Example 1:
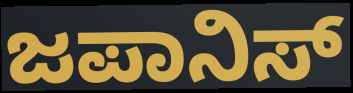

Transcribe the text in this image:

ಜಪಾನಿಸ್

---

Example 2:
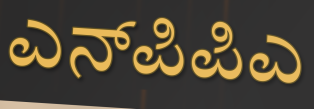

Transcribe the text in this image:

ಎನ್‌ಪಿಪಿಎ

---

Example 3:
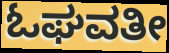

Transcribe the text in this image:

ಓಘವತೀ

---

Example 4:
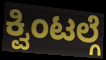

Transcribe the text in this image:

ಕ್ವಿಂಟಲ್ಗೆ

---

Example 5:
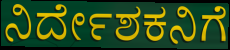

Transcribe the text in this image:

ನಿರ್ದೇಶಕನಿಗೆ